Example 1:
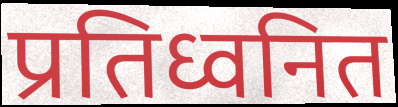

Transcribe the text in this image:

प्रतिध्वनित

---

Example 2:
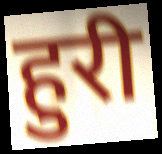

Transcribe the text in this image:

हुरी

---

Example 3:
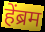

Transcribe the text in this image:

हेंब्रम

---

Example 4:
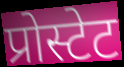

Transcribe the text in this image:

प्रोस्टेट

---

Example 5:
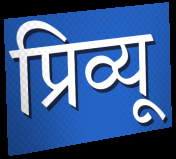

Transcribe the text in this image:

प्रिव्यू